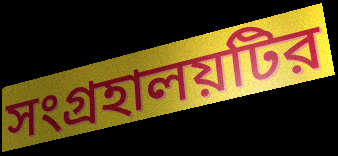
সংগ্রহালয়টির